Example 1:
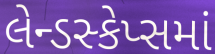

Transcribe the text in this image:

લેન્ડસ્કેપ્સમાં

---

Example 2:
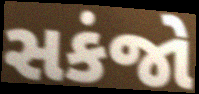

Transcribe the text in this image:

સકંજો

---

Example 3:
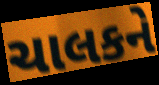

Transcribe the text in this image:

ચાલકને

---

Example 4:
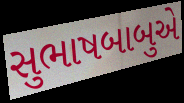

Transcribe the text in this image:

સુભાષબાબુએ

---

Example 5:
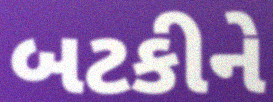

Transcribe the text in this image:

બટકીને